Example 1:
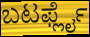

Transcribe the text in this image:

ಬಟರ್ಫ್ಲೈ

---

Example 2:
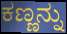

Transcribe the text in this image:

ಕಣ್ಣನ್ನು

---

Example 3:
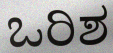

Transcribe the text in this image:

ಒರಿಶ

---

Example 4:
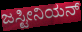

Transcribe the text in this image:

ಜಸ್ಟೀನಿಯನ್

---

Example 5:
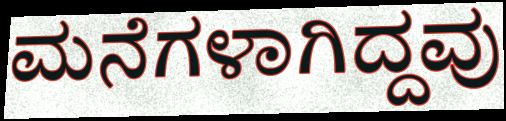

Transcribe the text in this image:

ಮನೆಗಳಾಗಿದ್ದವು